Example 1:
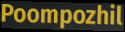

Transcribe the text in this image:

Poompozhil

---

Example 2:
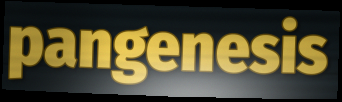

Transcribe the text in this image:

pangenesis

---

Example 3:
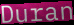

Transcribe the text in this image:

Duran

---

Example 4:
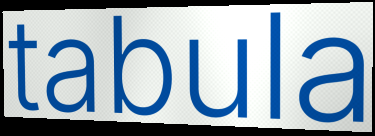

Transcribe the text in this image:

tabula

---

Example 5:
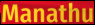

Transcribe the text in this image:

Manathu